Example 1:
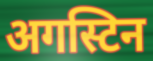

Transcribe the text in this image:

अगस्टिन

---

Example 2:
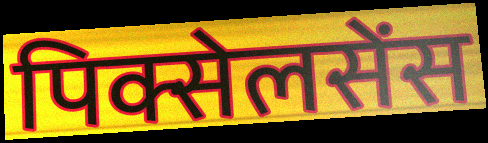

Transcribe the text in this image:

पिक्सेलसेंस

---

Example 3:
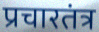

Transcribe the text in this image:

प्रचारतंत्र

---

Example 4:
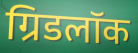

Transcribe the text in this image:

ग्रिडलॉक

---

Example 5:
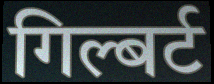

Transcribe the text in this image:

गिल्बर्ट